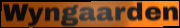
Wyngaarden